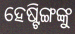
ହେଷ୍ଟିଙ୍ଗଙ୍କୁ